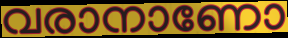
വരാനാണോ